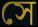
সে